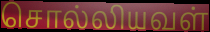
சொல்லியவள்